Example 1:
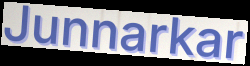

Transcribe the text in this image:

Junnarkar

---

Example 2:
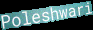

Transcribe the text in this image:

Poleshwari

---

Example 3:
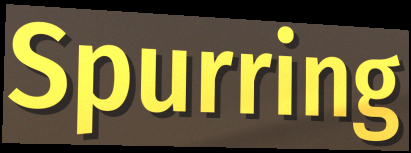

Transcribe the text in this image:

Spurring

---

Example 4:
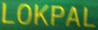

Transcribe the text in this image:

LOKPAL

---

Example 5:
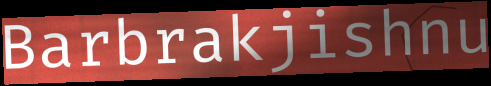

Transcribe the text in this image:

Barbrakjishnu